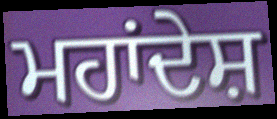
ਮਹਾਂਦੇਸ਼